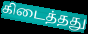
கிடைத்தது